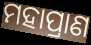
ମହାପ୍ରାଣ